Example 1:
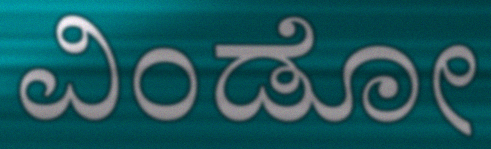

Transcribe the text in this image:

ವಿಂಡೋ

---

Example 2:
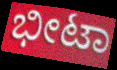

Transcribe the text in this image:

ಭೀಟಾ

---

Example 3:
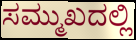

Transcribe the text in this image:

ಸಮ್ಮುಖದಲ್ಲಿ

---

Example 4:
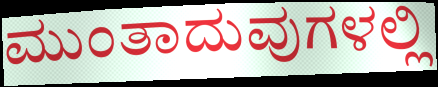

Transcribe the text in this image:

ಮುಂತಾದುವುಗಳಲ್ಲಿ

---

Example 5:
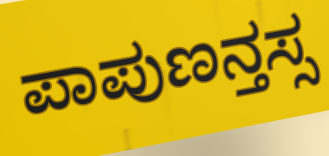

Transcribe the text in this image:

ಪಾಪುಣನ್ತಸ್ಸ